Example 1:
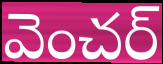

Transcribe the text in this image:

వెంచర్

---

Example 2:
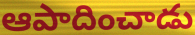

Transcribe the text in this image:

ఆపాదించాడు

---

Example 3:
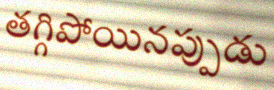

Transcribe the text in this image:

తగ్గిపోయినప్పుడు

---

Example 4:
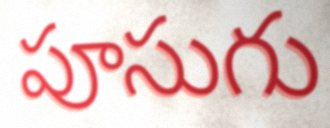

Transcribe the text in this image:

పూసుగు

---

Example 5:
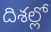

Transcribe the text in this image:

దిశల్లో